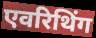
एवरिथिंग